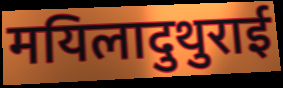
मयिलादुथुराई